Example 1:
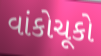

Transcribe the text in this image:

વાંકોચૂકો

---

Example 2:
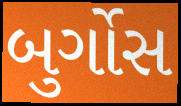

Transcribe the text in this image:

બુર્ગોસ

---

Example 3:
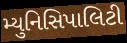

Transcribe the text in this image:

મ્યુનિસિપાલિટી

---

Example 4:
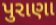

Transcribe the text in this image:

પુરાણા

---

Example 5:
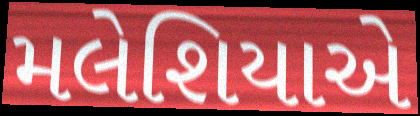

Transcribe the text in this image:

મલેશિયાએ